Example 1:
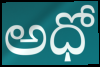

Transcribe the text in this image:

అధో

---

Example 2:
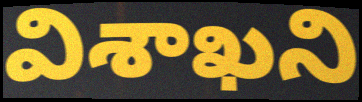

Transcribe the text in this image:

విశాఖని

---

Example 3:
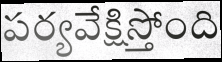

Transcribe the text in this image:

పర్యవేక్షిస్తోంది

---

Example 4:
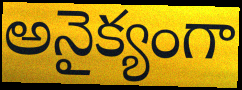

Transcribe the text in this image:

అనైక్యంగా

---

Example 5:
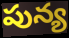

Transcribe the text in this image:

పున్య